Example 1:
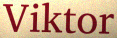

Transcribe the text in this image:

Viktor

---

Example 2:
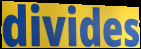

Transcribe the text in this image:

divides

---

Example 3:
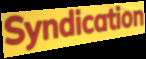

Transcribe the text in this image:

Syndication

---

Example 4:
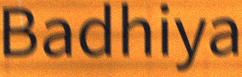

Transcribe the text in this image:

Badhiya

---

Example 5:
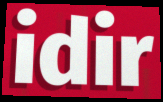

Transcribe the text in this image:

idir